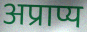
अप्राप्य